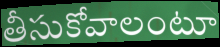
తీసుకోవాలంటూ